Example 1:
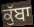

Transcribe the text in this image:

ਕੁੱਬਾ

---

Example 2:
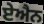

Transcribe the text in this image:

ਏਐਨ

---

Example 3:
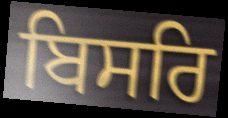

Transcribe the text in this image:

ਬਿਸਰਿ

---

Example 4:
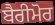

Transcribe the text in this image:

ਬੈਰੀਮੋਰ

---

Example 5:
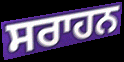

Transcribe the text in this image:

ਸਰਾਹਨ